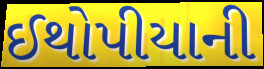
ઈથોપીયાની